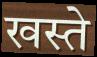
खस्ते